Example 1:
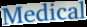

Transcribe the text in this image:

Medical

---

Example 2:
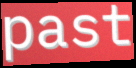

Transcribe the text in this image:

past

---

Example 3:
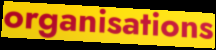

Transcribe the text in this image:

organisations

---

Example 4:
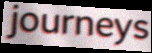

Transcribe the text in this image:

journeys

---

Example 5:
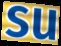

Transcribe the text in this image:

su